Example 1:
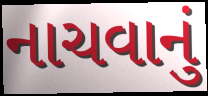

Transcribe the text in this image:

નાચવાનું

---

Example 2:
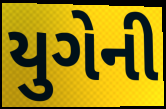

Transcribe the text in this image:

યુગેની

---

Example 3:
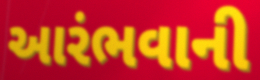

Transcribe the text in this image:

આરંભવાની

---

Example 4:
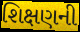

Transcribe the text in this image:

શિક્ષણની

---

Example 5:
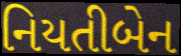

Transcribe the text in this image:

નિયતીબેન